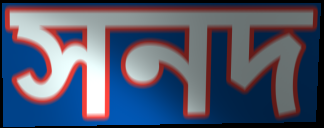
সনদ